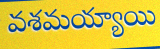
వశమయ్యాయి